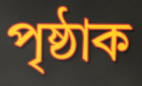
পৃষ্ঠাক